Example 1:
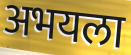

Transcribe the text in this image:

अभयला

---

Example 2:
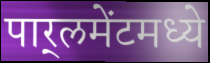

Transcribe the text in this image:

पार्लमेंटमध्ये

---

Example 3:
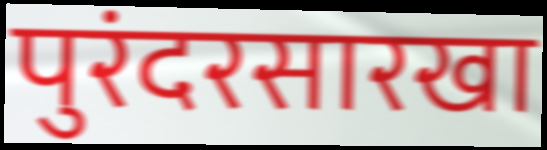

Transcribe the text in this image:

पुरंदरसारखा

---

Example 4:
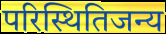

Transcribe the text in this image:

परिस्थितिजन्य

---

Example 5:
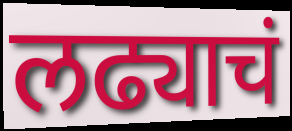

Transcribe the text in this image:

लढ्याचं